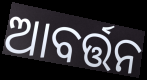
ଆବର୍ତ୍ତନ